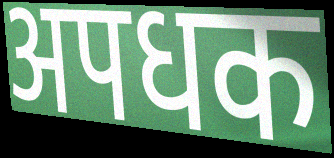
अपधक